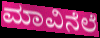
ಮಾವಿನೆಲೆ